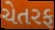
ચેતરફ